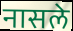
नासले